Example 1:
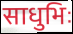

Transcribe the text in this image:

साधुभिः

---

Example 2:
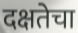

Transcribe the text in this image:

दक्षतेचा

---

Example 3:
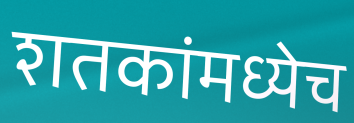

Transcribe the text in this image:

शतकांमध्येच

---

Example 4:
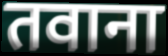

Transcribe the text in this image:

तवाना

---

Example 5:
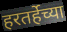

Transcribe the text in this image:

हरतर्हेच्या